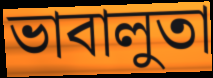
ভাবালুতা